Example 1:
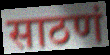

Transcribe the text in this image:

साठणं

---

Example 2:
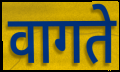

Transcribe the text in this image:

वागते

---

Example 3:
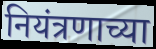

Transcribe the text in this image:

नियंत्रणाच्या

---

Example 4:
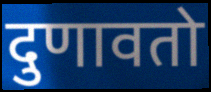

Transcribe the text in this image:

दुणावतो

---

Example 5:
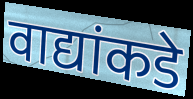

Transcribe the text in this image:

वाद्यांकडे